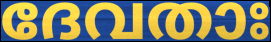
ദേവതാഃ